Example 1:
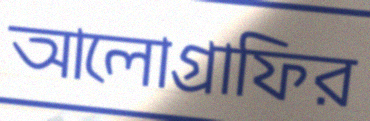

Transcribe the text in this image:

আলোগ্রাফির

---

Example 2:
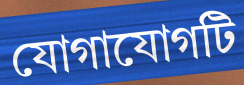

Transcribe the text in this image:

যোগাযোগটি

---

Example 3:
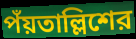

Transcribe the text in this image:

পঁয়তাল্লিশের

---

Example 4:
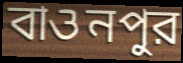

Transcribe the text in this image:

বাওনপুর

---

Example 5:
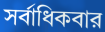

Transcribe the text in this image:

সর্বাধিকবার